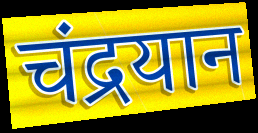
चंद्रयान